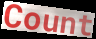
Count